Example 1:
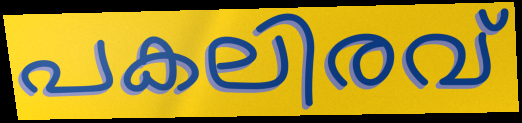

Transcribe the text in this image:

പകലിരവ്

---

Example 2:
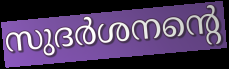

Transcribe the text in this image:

സുദർശനന്റെ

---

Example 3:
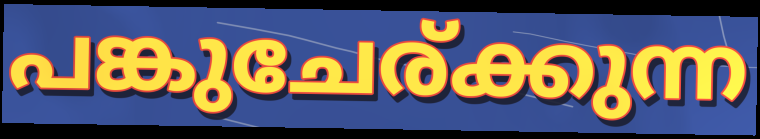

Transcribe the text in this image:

പങ്കുചേര്ക്കുന്ന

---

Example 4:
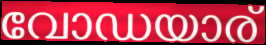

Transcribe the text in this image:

വോഡയാര്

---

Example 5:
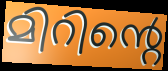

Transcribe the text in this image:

മിറിന്റെ